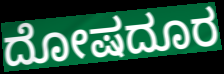
ದೋಷದೂರ